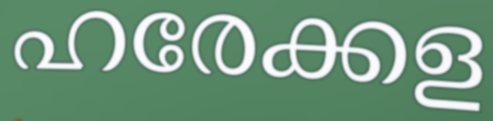
ഹരേക്കള